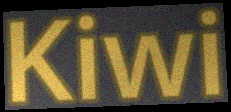
Kiwi